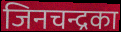
जिनचन्द्रका